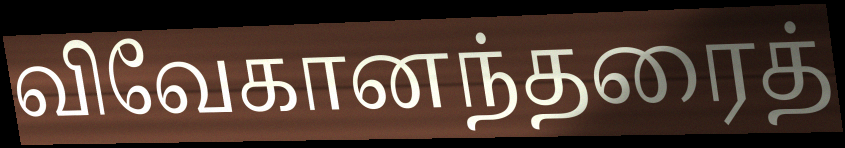
விவேகானந்தரைத்